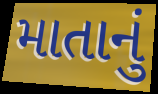
માતાનું